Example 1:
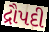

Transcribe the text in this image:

દ્રૌપદી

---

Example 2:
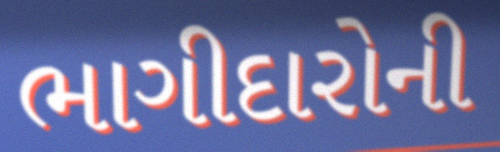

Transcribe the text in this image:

ભાગીદારોની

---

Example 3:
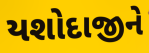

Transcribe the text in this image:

યશોદાજીને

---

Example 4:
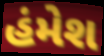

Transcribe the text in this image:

હંમેશ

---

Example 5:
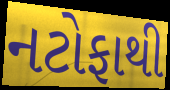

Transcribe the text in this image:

નટોફાથી